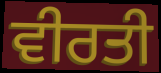
ਵੀਰਤੀ